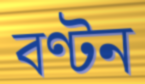
বণ্টন